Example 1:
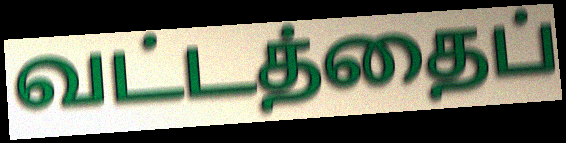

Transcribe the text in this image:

வட்டத்தைப்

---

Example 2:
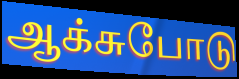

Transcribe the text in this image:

ஆக்சுபோடு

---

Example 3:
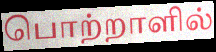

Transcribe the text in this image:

பொற்றாளில்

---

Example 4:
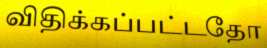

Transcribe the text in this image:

விதிக்கப்பட்டதோ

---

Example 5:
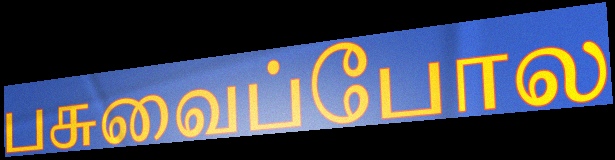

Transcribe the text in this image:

பசுவைப்போல